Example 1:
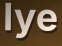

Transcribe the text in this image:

Iye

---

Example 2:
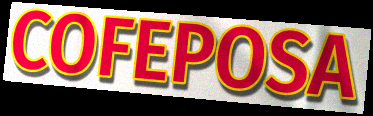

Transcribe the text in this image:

COFEPOSA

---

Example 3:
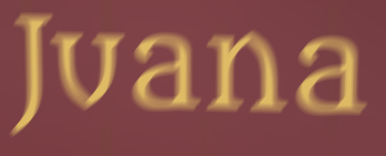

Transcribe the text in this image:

Juana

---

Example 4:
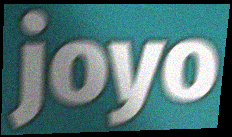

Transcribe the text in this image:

joyo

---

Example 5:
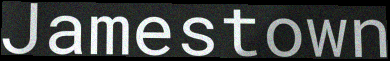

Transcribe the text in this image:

Jamestown